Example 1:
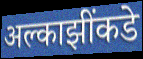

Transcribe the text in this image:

अल्काझींकडे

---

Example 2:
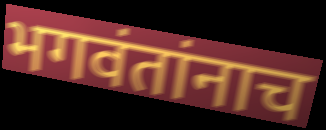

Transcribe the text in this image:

भगवंतांनाच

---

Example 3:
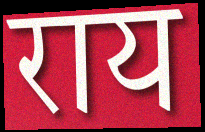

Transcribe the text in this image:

राय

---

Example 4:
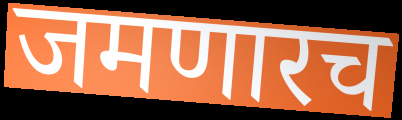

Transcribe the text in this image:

जमणारच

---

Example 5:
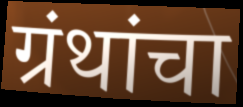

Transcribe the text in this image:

ग्रंथांचा